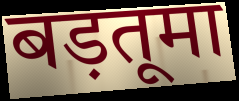
बड़तूमा